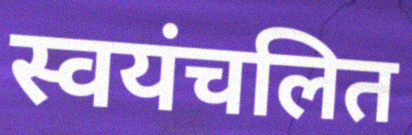
स्वयंचलित